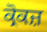
ਕ੍ਰੋਕਜ਼